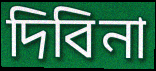
দিবিনা